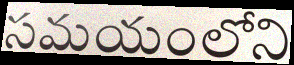
సమయంలోని